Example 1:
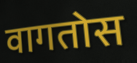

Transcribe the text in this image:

वागतोस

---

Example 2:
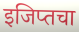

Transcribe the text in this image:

इजिप्तचा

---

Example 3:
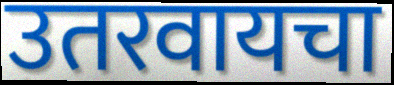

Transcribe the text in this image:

उतरवायचा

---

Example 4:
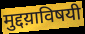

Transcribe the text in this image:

मुद्दय़ाविषयी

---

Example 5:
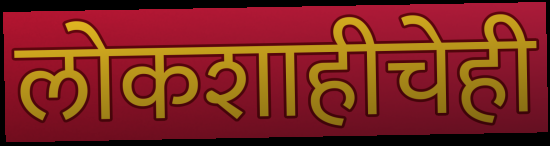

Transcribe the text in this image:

लोकशाहीचेही